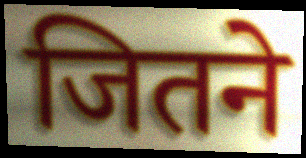
जितने